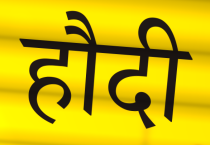
हौदी